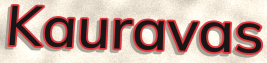
Kauravas